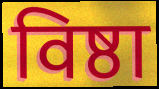
विष्ठा